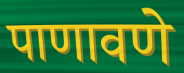
पाणावणे